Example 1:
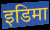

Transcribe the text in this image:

इडिमा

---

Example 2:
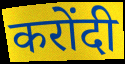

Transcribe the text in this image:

करोंदी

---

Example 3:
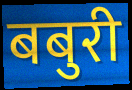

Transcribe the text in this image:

बबुरी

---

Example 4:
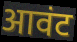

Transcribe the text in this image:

आवंट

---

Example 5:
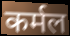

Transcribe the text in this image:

कर्मल